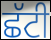
ਛੱਟੀ